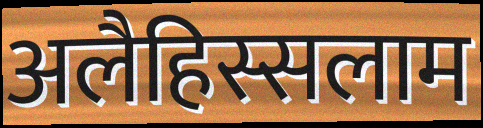
अलैहिस्सलाम